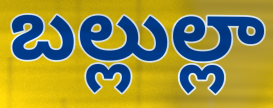
బల్లుల్లా